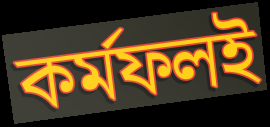
কর্মফলই